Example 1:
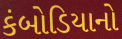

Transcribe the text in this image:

કંબોડિયાનો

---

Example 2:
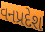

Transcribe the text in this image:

વનપ્રદેશ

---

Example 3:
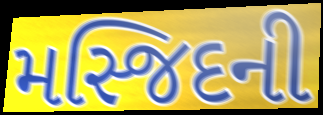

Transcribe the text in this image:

મસ્જિદની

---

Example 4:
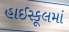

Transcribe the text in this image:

હાઈસ્કૂલમાં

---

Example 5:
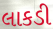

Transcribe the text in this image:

લાકડી